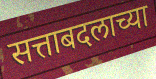
सत्ताबदलाच्या